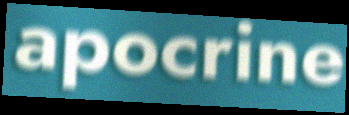
apocrine